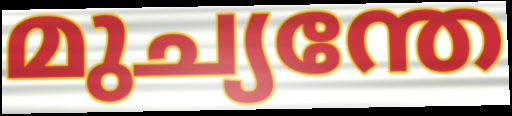
മുച്യന്തേ